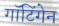
गॉटिंगेन